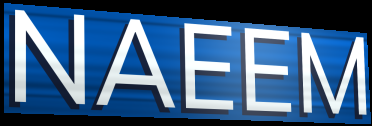
NAEEM